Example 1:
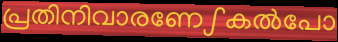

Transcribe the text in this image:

പ്രതിനിവാരണേഽകൽപോ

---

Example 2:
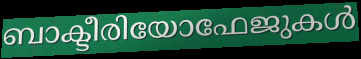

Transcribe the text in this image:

ബാക്ടീരിയോഫേജുകൾ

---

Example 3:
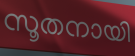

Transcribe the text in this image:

സൂതനായി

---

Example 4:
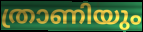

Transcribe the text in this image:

ത്രാണിയും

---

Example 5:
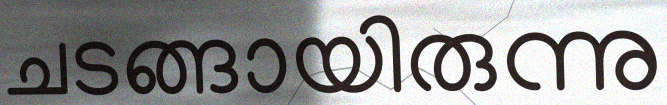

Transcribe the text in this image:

ചടങ്ങായിരുന്നു